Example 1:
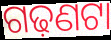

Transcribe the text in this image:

ଗଢ଼ଣଟା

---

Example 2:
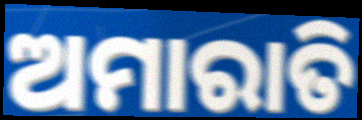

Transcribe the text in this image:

ଅମାରାତି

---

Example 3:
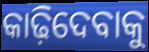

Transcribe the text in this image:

କାଢ଼ିଦେବାକୁ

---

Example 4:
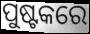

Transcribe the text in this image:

ପୁଷ୍ଟକରେ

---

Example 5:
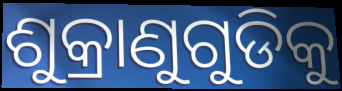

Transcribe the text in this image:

ଶୁକ୍ରାଣୁଗୁଡିକୁ